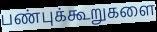
பண்புக்கூறுகளை